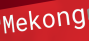
Mekong